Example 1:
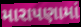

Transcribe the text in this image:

મારાપણામાં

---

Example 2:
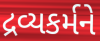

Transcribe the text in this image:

દ્રવ્યકર્મને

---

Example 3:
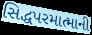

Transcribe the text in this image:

સિદ્ધપરમાત્માની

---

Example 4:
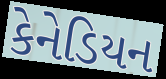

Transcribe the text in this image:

કેનેડિયન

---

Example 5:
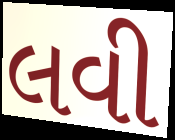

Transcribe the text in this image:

લવી